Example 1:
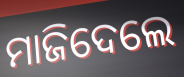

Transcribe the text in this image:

ମାଜିଦେଲେ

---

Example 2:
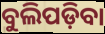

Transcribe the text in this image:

ବୁଲିପଡ଼ିବା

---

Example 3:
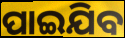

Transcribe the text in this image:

ପାଇଯିବ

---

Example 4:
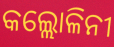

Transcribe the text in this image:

କଲ୍ଲୋଳିନୀ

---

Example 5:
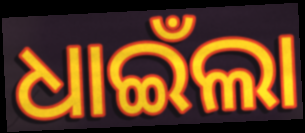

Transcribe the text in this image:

ଧାଇଁଲା